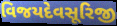
વિજયદેવસૂરિજી